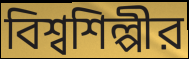
বিশ্বশিল্পীর